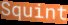
Squint